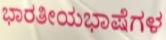
ಭಾರತೀಯಭಾಷೆಗಳ